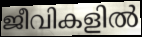
ജീവികളിൽ